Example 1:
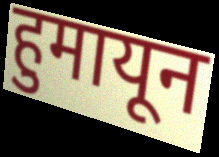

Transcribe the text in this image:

हुमायून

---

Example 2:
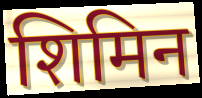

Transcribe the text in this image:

शिमिन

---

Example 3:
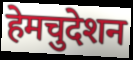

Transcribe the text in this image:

हेमचुदेशन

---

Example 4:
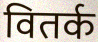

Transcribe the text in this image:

वितर्क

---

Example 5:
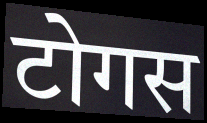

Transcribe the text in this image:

टोगस